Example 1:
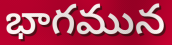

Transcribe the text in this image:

భాగమున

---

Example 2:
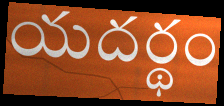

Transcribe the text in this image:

యదర్థం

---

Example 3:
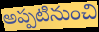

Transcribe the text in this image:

అప్పటినుంచి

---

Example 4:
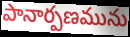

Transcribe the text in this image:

పానార్పణమును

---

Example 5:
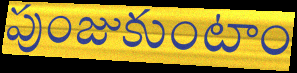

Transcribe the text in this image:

పుంజుకుంటాం